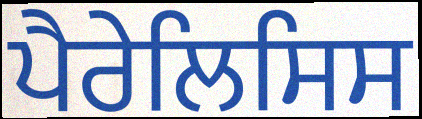
ਪੈਰੇਲਿਸਿਸ